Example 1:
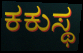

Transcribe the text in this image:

ಕಕುಸ್ಥ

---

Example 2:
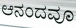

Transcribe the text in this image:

ಆನಂದವೂ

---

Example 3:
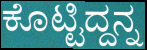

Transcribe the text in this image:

ಕೊಟ್ಟಿದ್ದನ್ನ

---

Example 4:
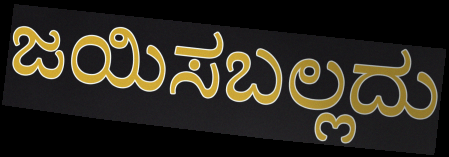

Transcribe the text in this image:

ಜಯಿಸಬಲ್ಲದು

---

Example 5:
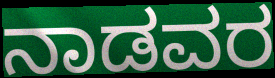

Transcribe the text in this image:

ನಾಡವರ